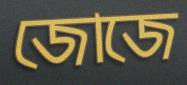
জোজে